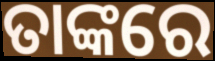
ତାଙ୍କରେ